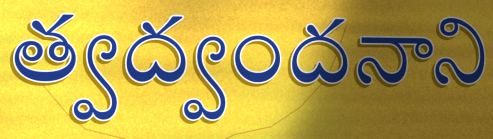
త్వద్వందనాని